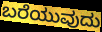
ಬರೆಯುವುದು